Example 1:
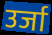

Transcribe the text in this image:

उर्जा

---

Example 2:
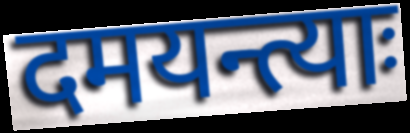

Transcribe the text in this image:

दमयन्त्याः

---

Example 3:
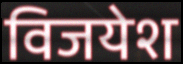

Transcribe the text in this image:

विजयेश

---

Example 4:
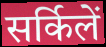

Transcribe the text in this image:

सर्किलें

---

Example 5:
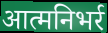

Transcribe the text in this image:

आत्मनिभर्र